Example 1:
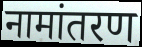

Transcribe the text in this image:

नामांतरण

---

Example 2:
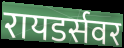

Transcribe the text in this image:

रायडर्सवर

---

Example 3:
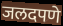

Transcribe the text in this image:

जलदपणे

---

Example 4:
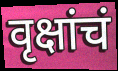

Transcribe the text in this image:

वृक्षांचं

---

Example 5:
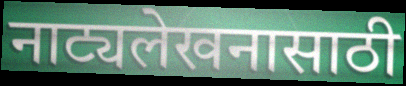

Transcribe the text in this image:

नाट्यलेखनासाठी